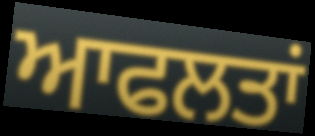
ਆਫਲਤਾਂ